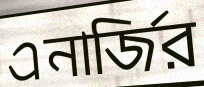
এনার্জির